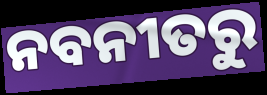
ନବନୀତରୁ